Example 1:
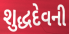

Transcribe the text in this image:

શુદ્ધદેવની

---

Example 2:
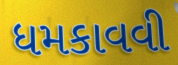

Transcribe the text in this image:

ધમકાવવી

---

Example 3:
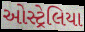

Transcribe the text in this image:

ઓસ્ટ્રેલિયા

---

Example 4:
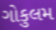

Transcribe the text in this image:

ગોકુલમ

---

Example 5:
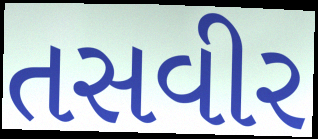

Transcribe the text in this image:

તસવીર